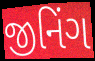
જીનિંગ